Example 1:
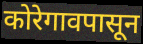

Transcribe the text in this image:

कोरेगावपासून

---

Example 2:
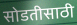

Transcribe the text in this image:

सोडतीसाठी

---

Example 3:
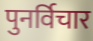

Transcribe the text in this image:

पुनर्विचार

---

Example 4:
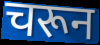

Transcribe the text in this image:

चरून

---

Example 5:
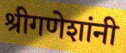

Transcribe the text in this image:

श्रीगणेशांनी